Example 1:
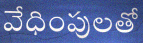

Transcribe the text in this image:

వేధింపులతో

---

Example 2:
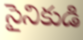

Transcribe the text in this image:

సైనికుడి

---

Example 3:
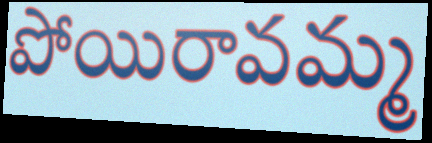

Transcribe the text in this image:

పోయిరావమ్మ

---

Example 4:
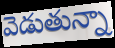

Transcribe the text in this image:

వెడుతున్నా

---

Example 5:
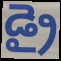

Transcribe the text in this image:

డ్రై